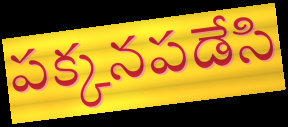
పక్కనపడేసి